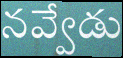
నవ్వేడు